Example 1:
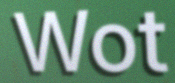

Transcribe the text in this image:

Wot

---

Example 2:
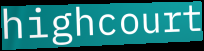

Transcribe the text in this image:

highcourt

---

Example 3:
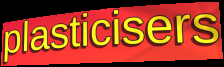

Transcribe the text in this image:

plasticisers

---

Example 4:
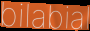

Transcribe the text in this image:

bilabial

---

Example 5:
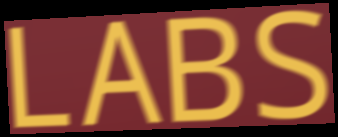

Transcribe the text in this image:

LABS